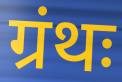
ग्रंथः